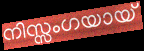
നിസ്സംഗയായ്